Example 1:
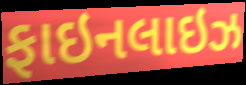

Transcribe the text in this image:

ફાઇનલાઇઝ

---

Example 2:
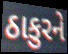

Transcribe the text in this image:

ઠાકુરને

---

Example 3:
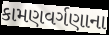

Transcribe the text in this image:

કામણવર્ગણાના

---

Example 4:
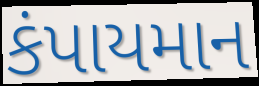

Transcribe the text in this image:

કંપાયમાન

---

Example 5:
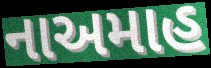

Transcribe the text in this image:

નાઅમાહ